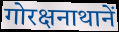
गोरक्षनाथानें